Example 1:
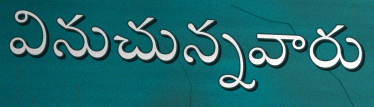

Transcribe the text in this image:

వినుచున్నవారు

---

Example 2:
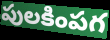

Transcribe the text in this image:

పులకింపగ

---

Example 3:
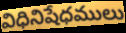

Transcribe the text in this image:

విధినిషేధములు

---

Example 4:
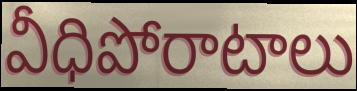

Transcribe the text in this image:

వీధిపోరాటాలు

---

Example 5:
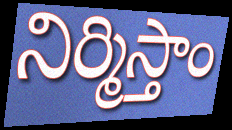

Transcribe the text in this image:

నిర్మిస్తాం